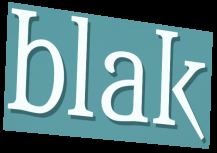
blak